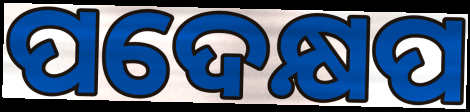
ପଦେକ୍ଷପ